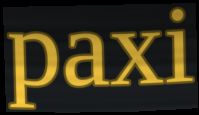
paxi